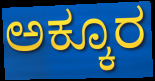
ಅಕ್ಕೂರ